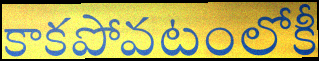
కాకపోవటంలోకీ